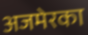
अजमेरका